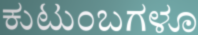
ಕುಟುಂಬಗಳೂ